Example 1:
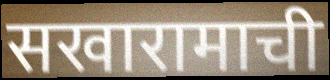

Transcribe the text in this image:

सखारामाची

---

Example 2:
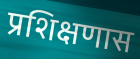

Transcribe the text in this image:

प्रशिक्षणास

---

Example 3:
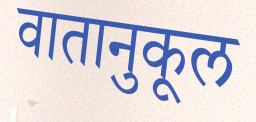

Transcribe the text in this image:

वातानुकूल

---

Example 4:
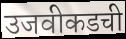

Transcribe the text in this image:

उजवीकडची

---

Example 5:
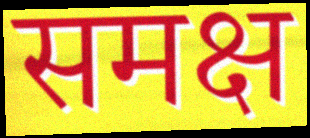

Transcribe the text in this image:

समक्ष